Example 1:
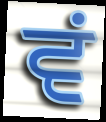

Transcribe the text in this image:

ਵਂ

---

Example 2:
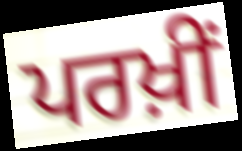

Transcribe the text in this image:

ਪਰਖ਼ੀਂ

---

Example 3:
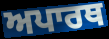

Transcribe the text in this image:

ਅਪਾਰਥ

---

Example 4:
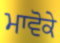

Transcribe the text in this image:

ਮਾਵੋਕੇ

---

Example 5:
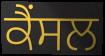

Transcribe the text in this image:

ਕੈਂਸਲ